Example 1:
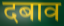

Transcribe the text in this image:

दबाव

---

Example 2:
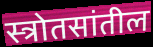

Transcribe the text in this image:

स्त्रोतसांतील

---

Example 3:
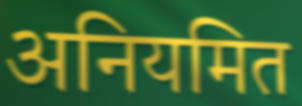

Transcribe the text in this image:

अनियमित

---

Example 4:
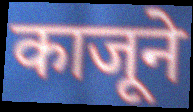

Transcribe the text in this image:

काजूने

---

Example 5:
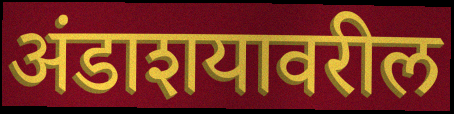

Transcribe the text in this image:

अंडाशयावरील